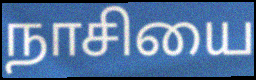
நாசியை